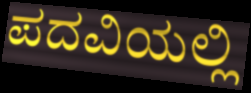
ಪದವಿಯಲ್ಲಿ